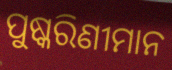
ପୁଷ୍କରିଣୀମାନ